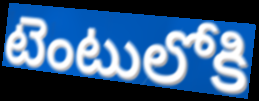
టెంటులోకి